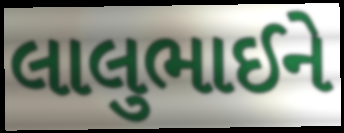
લાલુભાઈને